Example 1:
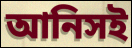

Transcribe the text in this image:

আনিসই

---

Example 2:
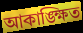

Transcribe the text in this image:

আকাঙ্ক্ষিত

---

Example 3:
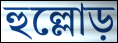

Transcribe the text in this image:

হুল্লোড়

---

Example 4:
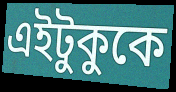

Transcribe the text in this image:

এইটুকুকে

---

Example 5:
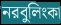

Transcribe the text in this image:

নরবুলিংকা